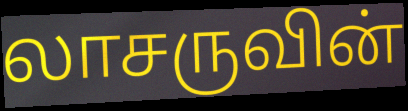
லாசருவின்